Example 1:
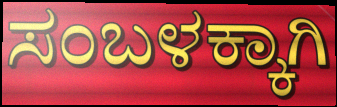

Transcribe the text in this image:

ಸಂಬಳಕ್ಕಾಗಿ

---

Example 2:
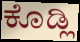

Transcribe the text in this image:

ಕೊಡ್ಲಿ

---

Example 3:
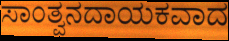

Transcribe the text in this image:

ಸಾಂತ್ವನದಾಯಕವಾದ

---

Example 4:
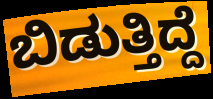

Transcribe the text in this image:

ಬಿಡುತ್ತಿದ್ದೆ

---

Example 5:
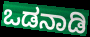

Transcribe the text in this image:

ಒಡನಾಡಿ